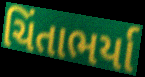
ચિંતાભર્યા